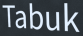
Tabuk